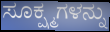
ಸೂಕ್ಷ್ಮಗಳನ್ನು